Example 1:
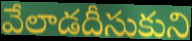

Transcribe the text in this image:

వేలాడదీసుకుని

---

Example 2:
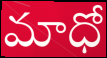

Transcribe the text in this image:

మాధో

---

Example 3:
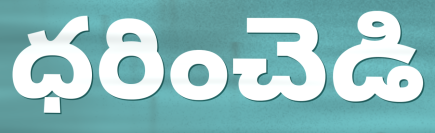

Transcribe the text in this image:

ధరించెడి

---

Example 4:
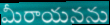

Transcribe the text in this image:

మీరాయనను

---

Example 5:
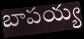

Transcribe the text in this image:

బాపయ్య